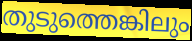
തുടുത്തെങ്കിലും